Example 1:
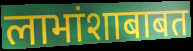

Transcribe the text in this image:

लाभांशाबाबत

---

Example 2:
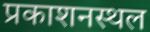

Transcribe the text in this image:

प्रकाशनस्थल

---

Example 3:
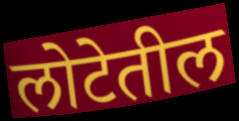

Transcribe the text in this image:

लोटेतील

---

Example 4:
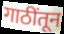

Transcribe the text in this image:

गाठींतून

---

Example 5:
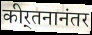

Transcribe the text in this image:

कीर्तनानंतर